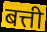
बत्ती